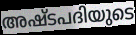
അഷ്ടപദിയുടെ